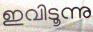
ഇവിടൂന്നു